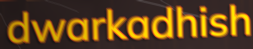
dwarkadhish